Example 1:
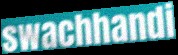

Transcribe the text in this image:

swachhandi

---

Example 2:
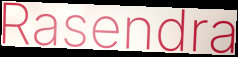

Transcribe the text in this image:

Rasendra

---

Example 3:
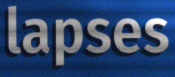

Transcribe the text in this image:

lapses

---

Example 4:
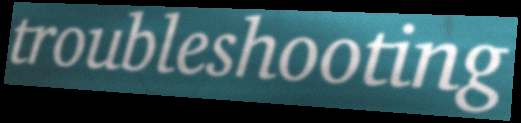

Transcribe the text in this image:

troubleshooting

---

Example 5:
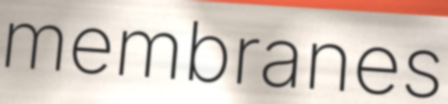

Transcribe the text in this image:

membranes